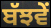
ਬੱਝਵੇਂ